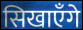
सिखाएँगे